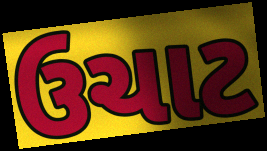
ઉચાટ